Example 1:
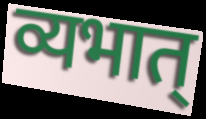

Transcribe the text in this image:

व्यभात्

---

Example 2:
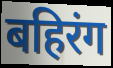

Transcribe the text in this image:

बहिरंग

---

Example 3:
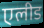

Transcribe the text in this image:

एलीड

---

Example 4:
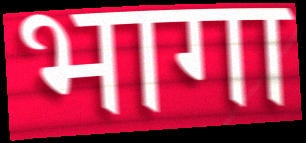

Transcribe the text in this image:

भागा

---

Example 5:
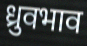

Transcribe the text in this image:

ध्रुवभाव